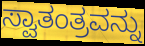
ಸ್ವಾತಂತ್ರವನ್ನು